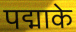
पद्माके